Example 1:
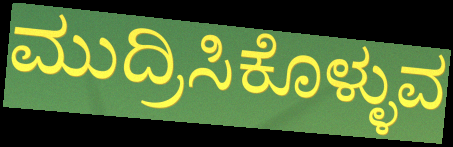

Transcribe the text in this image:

ಮುದ್ರಿಸಿಕೊಳ್ಳುವ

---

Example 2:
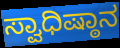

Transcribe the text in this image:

ಸ್ವಾಧಿಷ್ಠಾನ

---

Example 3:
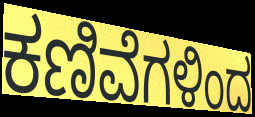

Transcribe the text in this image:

ಕಣಿವೆಗಳಿಂದ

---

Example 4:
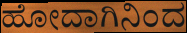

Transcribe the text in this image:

ಹೋದಾಗಿನಿಂದ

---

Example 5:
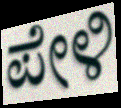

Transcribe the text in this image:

ಪೇಳಿ